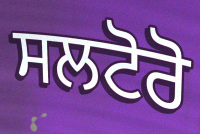
ਸਲਟੋਰੋ